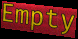
Empty